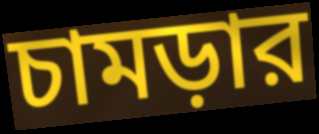
চামড়ার